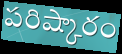
పరిష్కారం